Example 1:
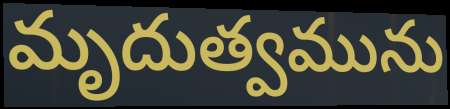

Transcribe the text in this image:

మృదుత్వమును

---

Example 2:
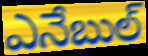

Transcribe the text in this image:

ఎనేబుల్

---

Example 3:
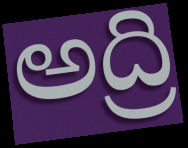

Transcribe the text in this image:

అద్రి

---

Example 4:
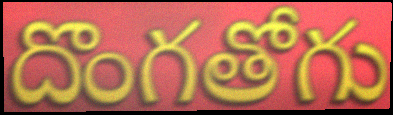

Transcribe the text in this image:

దొంగతోగు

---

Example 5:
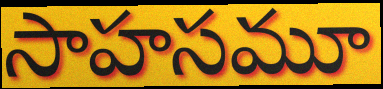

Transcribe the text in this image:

సాహసమూ